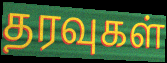
தரவுகள்